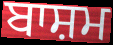
ਬਾਸ਼ਮ